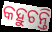
କହୁଚନ୍ତି